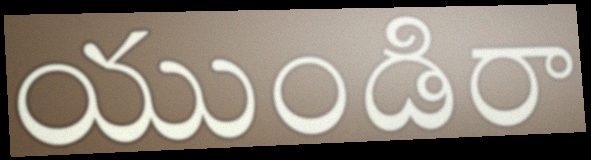
యుండిరా